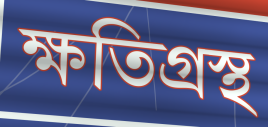
ক্ষতিগ্রস্থ